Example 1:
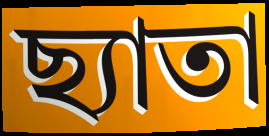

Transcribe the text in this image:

ছ্যাতা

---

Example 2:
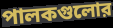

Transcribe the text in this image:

পালকগুলোর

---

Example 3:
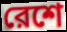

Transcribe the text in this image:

রেশে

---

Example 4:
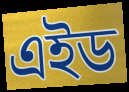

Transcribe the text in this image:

এইড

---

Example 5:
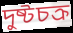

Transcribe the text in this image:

দুষ্টচক্র